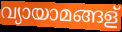
വ്യായാമങ്ങള്